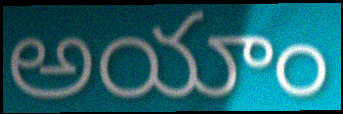
అయాం